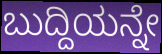
ಬುದ್ದಿಯನ್ನೇ